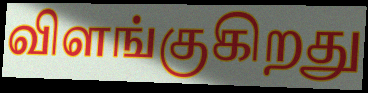
விளங்குகிறது